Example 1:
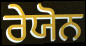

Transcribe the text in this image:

ਰੇਯੋਨ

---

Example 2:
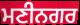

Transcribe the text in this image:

ਮਣੀਨਗਰ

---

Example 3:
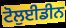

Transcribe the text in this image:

ਟੋਲੁਈਡੀਨ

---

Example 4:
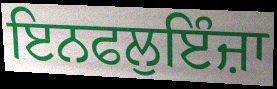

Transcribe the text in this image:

ਇਨਫਲੁਇੰਜ਼ਾ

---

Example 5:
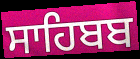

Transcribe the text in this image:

ਸਾਹਿਬਬ